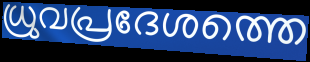
ധ്രുവപ്രദേശത്തെ